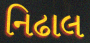
નિઢાલ